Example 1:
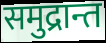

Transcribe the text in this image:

समुद्रान्त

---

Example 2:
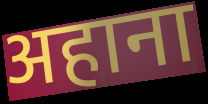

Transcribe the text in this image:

अहाना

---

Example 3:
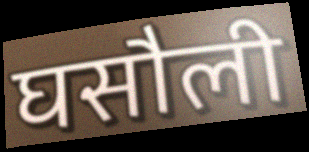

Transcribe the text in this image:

घसौली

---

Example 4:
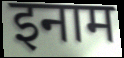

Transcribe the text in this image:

इनाम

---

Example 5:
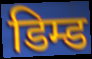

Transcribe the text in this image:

डिम्ड